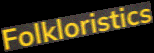
Folkloristics